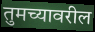
तुमच्यावरील